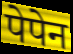
पेपेन